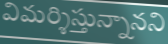
విమర్శిస్తున్నానని